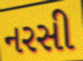
નરસી